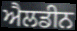
ਐਲਡੀਨ